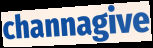
channagive